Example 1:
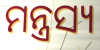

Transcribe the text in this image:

ମନ୍ତ୍ରସ୍ୟ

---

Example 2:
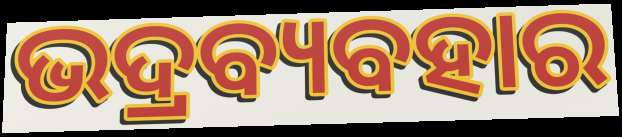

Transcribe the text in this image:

ଭଦ୍ରବ୍ୟବହାର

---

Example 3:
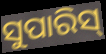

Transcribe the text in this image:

ସୁପାରିସ୍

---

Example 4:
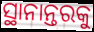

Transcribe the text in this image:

ସ୍ଥାନାନ୍ତରକୁ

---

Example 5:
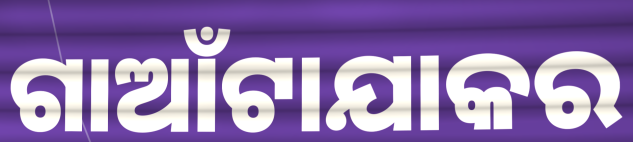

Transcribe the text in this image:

ଗାଆଁଟାଯାକର